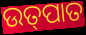
ଉତ୍‌ପାତ